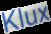
Klux